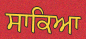
ਸਾਕਿਆ